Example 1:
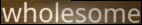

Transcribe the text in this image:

wholesome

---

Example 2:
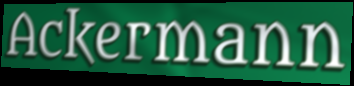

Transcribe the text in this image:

Ackermann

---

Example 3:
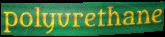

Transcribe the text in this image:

polyurethane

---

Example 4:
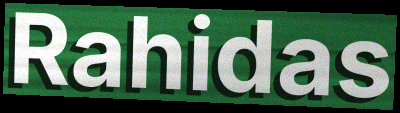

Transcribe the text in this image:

Rahidas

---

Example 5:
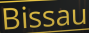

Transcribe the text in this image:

Bissau